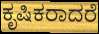
ಕೃಷಿಕರಾದರೆ